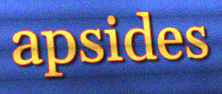
apsides